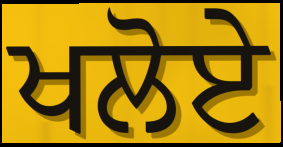
ਖਲੋਏ